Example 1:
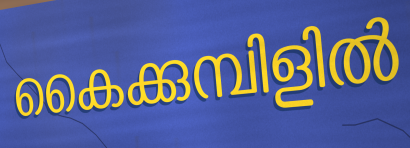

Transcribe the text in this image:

കൈക്കുമ്പിളിൽ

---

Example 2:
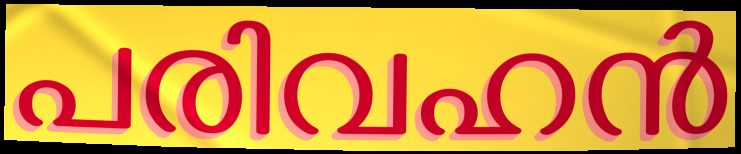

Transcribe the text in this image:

പരിവഹൻ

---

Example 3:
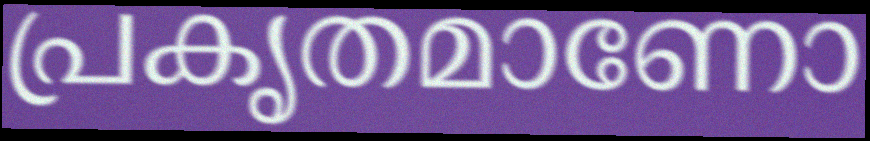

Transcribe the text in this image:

പ്രകൃതമാണോ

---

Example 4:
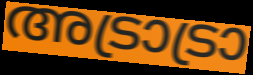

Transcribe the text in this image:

അട്രാട്രാ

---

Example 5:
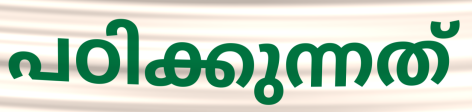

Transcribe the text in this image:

പഠിക്കുന്നത്